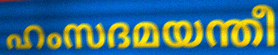
ഹംസദമയന്തീ